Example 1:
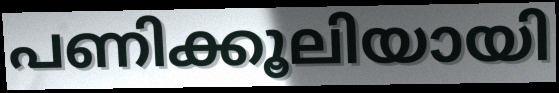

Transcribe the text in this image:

പണിക്കൂലിയായി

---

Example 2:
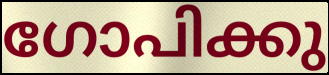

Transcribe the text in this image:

ഗോപിക്കു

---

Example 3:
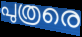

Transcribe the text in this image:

പുത്രരെ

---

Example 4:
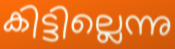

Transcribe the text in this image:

കിട്ടില്ലെന്നു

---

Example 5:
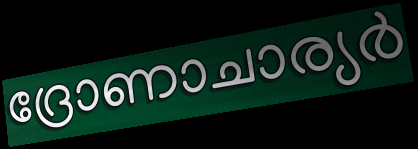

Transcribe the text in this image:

ദ്രോണാചാര്യർ